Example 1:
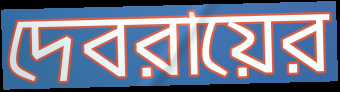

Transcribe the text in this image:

দেবরায়ের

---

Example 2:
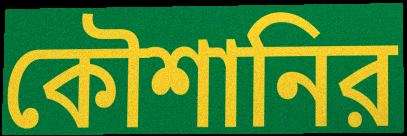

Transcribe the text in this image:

কৌশানির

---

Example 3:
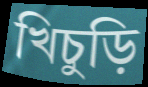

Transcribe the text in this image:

খিচুড়ি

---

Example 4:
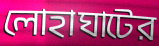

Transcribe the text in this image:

লোহাঘাটের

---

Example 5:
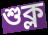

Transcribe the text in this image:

শুক্ল